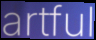
artful